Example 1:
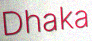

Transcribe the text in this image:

Dhaka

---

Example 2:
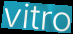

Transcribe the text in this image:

vitro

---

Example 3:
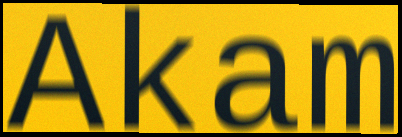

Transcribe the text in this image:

Akam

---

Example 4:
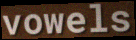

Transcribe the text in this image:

vowels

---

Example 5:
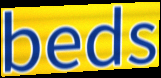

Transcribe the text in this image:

beds